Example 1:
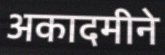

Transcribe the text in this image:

अकादमीने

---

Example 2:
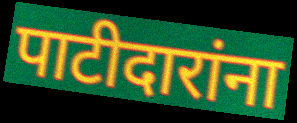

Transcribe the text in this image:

पाटीदारांना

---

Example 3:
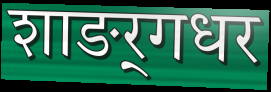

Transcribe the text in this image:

शाङर्गधर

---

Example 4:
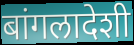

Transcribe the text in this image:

बांगलादेशी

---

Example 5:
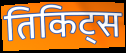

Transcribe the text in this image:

तिकिट्स